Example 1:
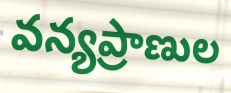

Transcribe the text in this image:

వన్యప్రాణుల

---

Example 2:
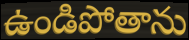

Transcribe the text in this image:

ఉండిపోతాను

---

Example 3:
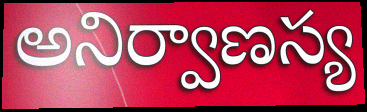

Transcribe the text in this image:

అనిర్వాణస్య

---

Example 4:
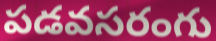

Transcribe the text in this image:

పడవసరంగు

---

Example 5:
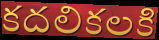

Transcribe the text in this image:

కదలికలకి